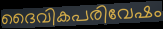
ദൈവികപരിവേഷം